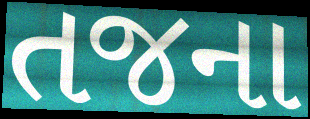
તજના